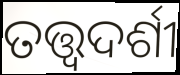
ତତ୍ତ୍ଵଦର୍ଶୀ